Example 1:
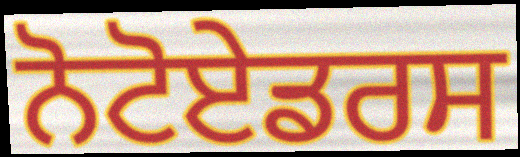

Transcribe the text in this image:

ਨੋਟੋਏਡਰਸ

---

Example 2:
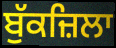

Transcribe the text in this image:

ਬੁੱਕਜ਼ਿਲਾ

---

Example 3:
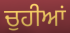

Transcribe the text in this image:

ਚੁਹੀਆਂ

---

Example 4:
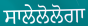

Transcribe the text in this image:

ਸਾਲੇਲੋਲੋਗਾ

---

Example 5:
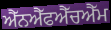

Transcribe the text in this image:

ਐੱਨਐੱਫਐੱਚਐੱਮ